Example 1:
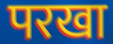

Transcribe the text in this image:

परखा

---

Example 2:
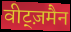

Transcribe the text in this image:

वीट्ज़मैन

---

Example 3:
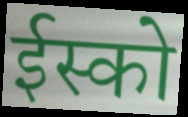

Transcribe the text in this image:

ईस्को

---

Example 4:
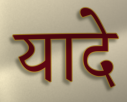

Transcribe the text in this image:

यादे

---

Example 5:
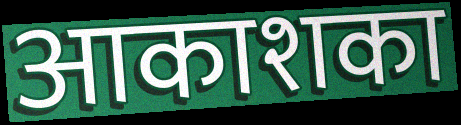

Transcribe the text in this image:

आकाशका